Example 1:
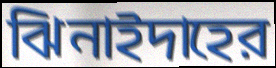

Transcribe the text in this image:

ঝিনাইদাহের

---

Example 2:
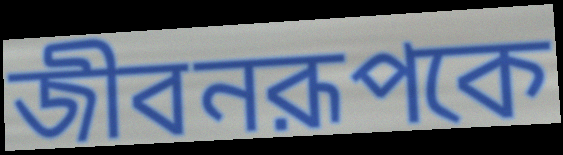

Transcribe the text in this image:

জীবনরূপকে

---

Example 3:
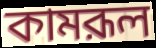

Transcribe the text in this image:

কামরূল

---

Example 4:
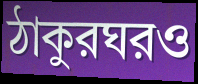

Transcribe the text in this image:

ঠাকুরঘরও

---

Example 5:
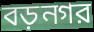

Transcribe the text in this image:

বড়নগর